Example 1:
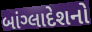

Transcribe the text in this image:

બાંગ્લાદેશનો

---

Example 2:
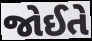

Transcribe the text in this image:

જોઈતે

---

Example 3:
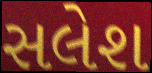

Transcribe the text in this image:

સલેશ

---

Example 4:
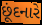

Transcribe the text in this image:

છૂંદનારે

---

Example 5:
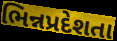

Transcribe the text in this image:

ભિન્નપ્રદેશતા